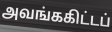
அவங்ககிட்டப்